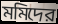
মমিদের